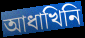
আধাখিনি